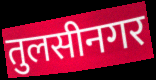
तुलसीनगर